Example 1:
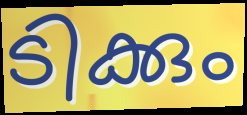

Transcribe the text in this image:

ടിക്കും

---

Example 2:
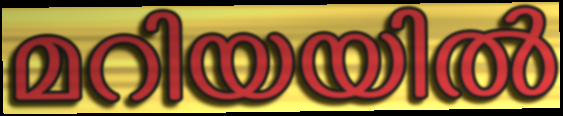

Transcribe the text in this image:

മറിയയിൽ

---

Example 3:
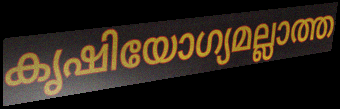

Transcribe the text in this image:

കൃഷിയോഗ്യമല്ലാത്ത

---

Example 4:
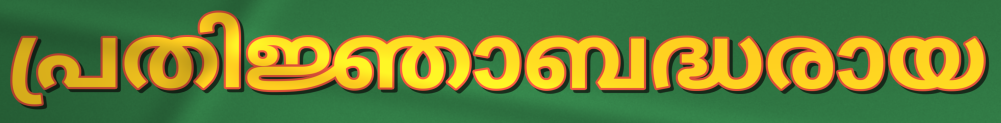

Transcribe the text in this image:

പ്രതിജ്ഞാബദ്ധരായ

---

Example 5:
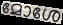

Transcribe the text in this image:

മോശേ